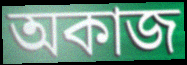
অকাজ